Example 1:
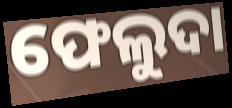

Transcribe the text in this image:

ଫେଲୁଦା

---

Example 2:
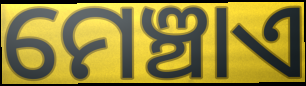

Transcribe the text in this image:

ମେଞ୍ଚାଏ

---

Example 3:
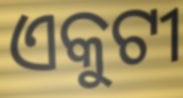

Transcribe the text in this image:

ଏକୁଟୀ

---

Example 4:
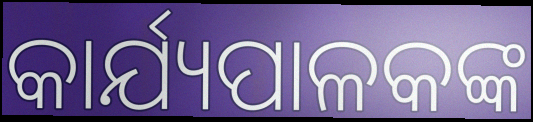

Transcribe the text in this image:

କାର୍ଯ୍ୟପାଳକଙ୍କ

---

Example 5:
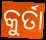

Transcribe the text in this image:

କୁର୍ତା